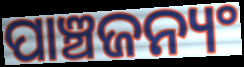
ପାଞ୍ଚଜନ୍ୟଂ